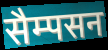
सैम्पसन